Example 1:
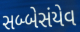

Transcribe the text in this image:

સબ્બેસંયેવ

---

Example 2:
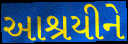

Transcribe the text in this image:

આશ્રયીને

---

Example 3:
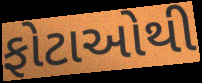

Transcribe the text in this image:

ફોટાઓથી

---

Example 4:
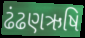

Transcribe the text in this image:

ઢંઢણઋષિ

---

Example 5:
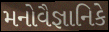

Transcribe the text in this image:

મનોવૈજ્ઞાનિકે